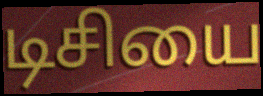
டிசியை